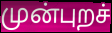
முன்புறச்